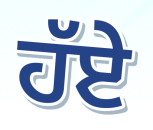
ਹੱਏ